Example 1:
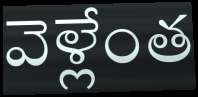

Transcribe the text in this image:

వెళ్లేంత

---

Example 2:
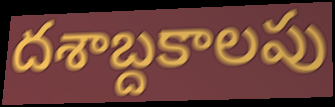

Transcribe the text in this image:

దశాబ్దకాలపు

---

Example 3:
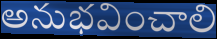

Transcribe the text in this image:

అనుభవించాలి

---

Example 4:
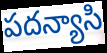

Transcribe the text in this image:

పదన్యాసి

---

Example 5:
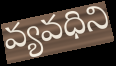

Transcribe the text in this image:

వ్యవధిని